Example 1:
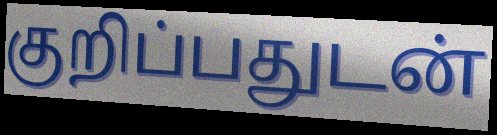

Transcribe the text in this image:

குறிப்பதுடன்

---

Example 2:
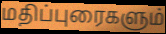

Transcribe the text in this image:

மதிப்புரைகளும்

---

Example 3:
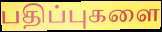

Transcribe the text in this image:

பதிப்புகளை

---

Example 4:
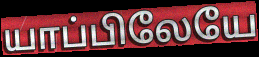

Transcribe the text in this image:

யாப்பிலேயே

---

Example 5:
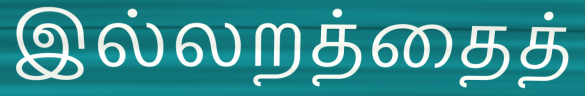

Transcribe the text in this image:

இல்லறத்தைத்